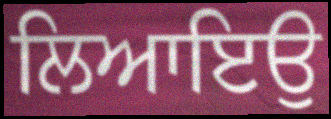
ਲਿਆਇਉ